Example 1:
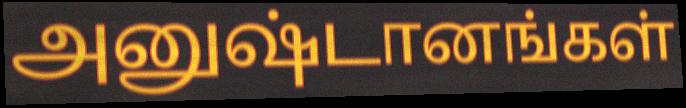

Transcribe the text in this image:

அனுஷ்டானங்கள்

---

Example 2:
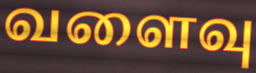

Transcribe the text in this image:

வளைவு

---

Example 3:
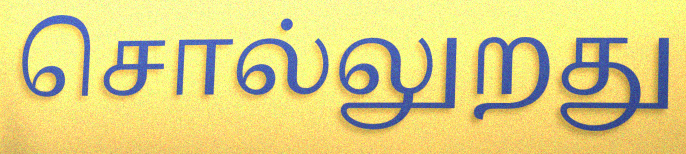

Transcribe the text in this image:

சொல்லுறது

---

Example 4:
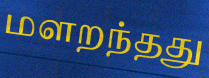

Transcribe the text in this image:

மளறந்தது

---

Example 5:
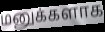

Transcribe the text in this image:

மனுக்களாக